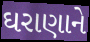
ઘરાણાને